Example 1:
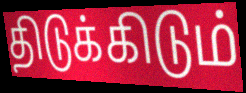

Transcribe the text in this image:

திடுக்கிடும்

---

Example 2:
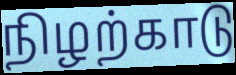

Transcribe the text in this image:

நிழற்காடு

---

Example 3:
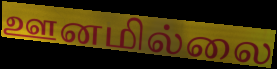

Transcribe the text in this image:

ஊனமில்லை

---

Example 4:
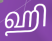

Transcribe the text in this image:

ஹி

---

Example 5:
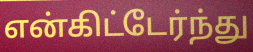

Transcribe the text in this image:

என்கிட்டேர்ந்து